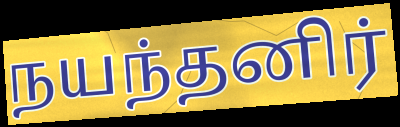
நயந்தனிர்